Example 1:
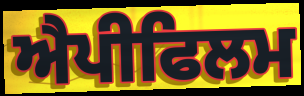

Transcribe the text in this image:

ਐਪੀਫਿਲਮ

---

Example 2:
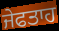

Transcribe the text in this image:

ਜੇਫਤਾਹ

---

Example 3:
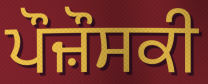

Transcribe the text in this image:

ਪੌਜ਼ੌਸਕੀ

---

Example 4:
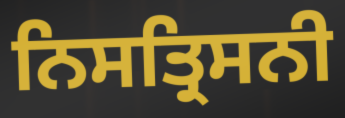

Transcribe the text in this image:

ਨਿਸਤ੍ਰਿਸਨੀ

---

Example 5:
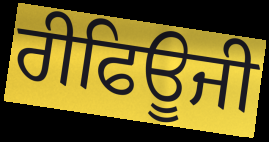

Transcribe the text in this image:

ਰੀਫਿਊਜੀ